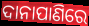
ଦାନାପାଣିରେ